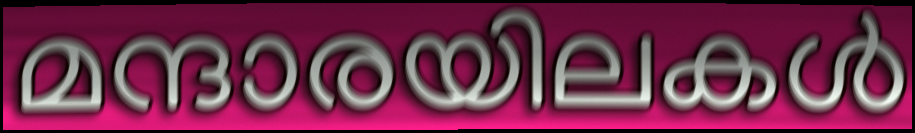
മന്ദാരയിലകൾ